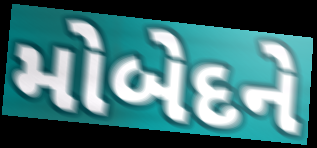
મોબેદને